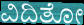
ವಿದಿತೋ